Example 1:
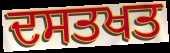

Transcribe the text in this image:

ਦਸਤਖਤ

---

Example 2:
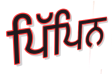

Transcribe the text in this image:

ਪਿੱਪਿਨ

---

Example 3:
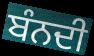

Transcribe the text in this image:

ਬੰਨਦੀ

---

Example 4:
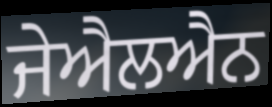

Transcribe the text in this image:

ਜੇਐਲਐਨ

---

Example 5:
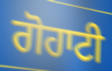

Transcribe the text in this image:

ਗੋਹਾਟੀ